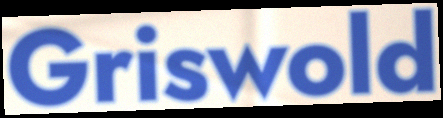
Griswold